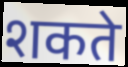
शकते